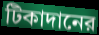
টিকাদানের